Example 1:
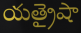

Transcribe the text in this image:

యత్రైషా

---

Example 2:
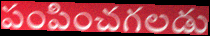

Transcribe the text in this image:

పంపించగలడు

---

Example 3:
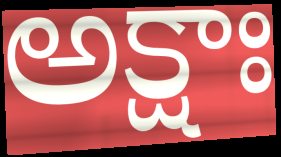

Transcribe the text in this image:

అక్షాః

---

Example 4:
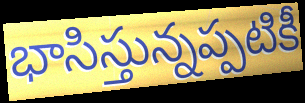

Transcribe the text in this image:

భాసిస్తున్నప్పటికీ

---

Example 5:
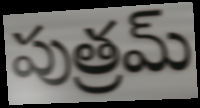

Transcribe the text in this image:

పుత్రమ్